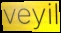
veyil